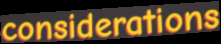
considerations